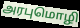
அரபுமொழி